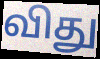
விது